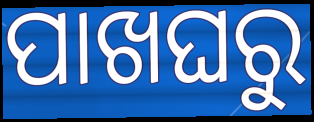
ପାଖଘରୁ